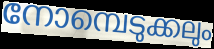
നോമ്പെടുക്കലും